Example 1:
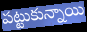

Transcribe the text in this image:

పట్టుకున్నాయి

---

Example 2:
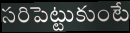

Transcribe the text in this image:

సరిపెట్టుకుంటే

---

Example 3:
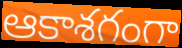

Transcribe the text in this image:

ఆకాశగంగా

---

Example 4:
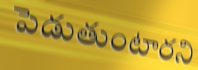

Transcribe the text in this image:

పెడుతుంటారని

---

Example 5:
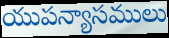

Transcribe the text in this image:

యుపన్యాసములు